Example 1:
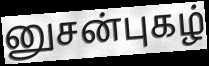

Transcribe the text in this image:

னுசன்புகழ்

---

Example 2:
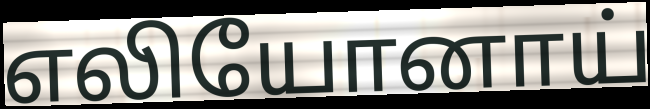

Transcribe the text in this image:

எலியோனாய்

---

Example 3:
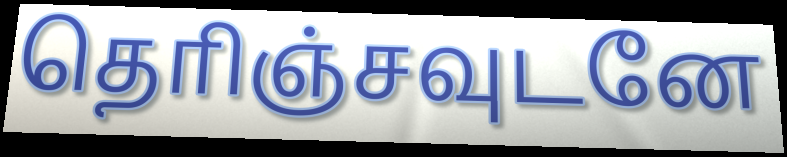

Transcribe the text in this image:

தெரிஞ்சவுடனே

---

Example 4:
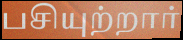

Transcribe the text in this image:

பசியுற்றார்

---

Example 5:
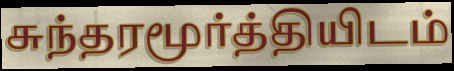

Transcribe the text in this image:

சுந்தரமூர்த்தியிடம்